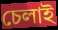
চেলাই